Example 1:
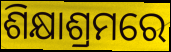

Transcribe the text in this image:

ଶିକ୍ଷାଶ୍ରମରେ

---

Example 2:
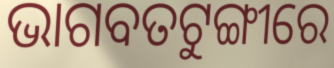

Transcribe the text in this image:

ଭାଗବତଟୁଙ୍ଗୀରେ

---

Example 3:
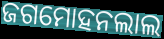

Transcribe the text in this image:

ଜଗମୋହନଲାଲ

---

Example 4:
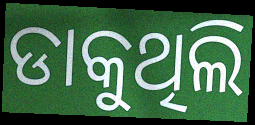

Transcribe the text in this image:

ଡାକୁଥିଲି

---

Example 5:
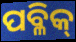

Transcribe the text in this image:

ପବ୍ଳିକ୍